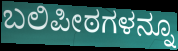
ಬಲಿಪೀಠಗಳನ್ನೂ